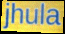
jhula